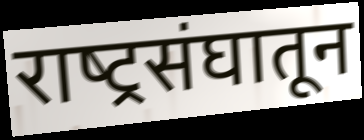
राष्ट्रसंघातून